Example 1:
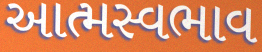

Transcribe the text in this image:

આત્મસ્વભાવ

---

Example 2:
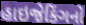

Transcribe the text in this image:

હાઇજેકિંગનો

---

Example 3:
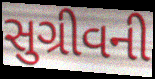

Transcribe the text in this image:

સુગ્રીવની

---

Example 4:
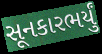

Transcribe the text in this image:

સૂનકારભર્યું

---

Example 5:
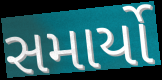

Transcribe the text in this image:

સમાર્યો